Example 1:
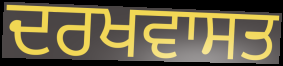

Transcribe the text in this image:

ਦਰਖਵਾਸਤ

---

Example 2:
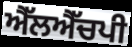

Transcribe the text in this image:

ਐੱਲਐੱਚਪੀ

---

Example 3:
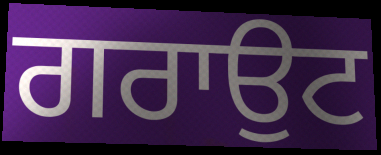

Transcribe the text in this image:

ਗਰਾਉਟ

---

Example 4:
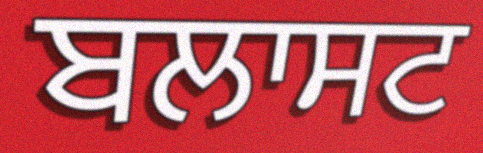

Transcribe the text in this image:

ਬਲਾਸਟ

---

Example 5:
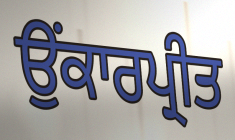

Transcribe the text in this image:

ਉਂਕਾਰਪ੍ਰੀਤ